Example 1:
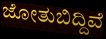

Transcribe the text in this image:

ಜೋತುಬಿದ್ದಿವೆ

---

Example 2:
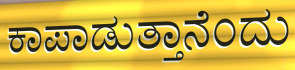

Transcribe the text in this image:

ಕಾಪಾಡುತ್ತಾನೆಂದು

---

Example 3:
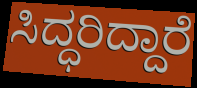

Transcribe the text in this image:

ಸಿದ್ಧರಿದ್ದಾರೆ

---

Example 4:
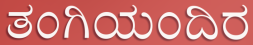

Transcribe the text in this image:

ತಂಗಿಯಂದಿರ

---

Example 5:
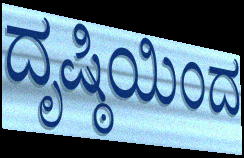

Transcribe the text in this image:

ದೃಷ್ಠಿಯಿಂದ